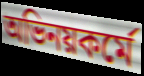
অভিনয়কর্মে